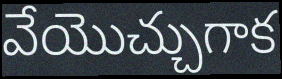
వేయొచ్చుగాక